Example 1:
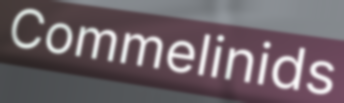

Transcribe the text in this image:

Commelinids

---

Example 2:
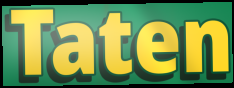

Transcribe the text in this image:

Taten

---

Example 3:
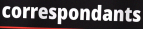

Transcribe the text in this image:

correspondants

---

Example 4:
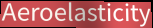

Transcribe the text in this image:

Aeroelasticity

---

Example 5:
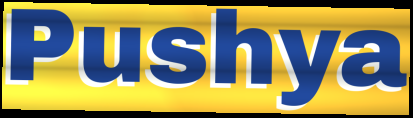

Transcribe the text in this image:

Pushya